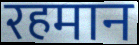
रहमान